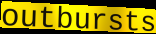
outbursts